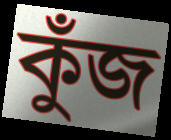
কুঁজ